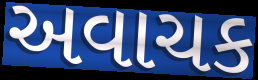
અવાચક